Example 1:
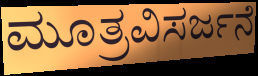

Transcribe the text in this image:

ಮೂತ್ರವಿಸರ್ಜನೆ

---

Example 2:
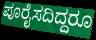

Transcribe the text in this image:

ಪೂರೈಸದಿದ್ದರೂ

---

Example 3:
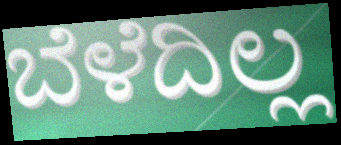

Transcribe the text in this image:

ಬೆಳೆದಿಲ್ಲ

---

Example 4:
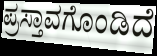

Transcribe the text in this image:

ಪ್ರಸ್ತಾವಗೊಂಡಿದೆ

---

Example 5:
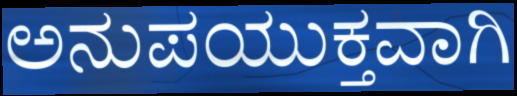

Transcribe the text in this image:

ಅನುಪಯುಕ್ತವಾಗಿ